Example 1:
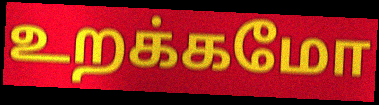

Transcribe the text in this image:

உறக்கமோ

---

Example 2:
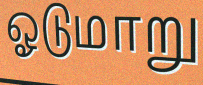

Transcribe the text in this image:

ஓடுமாறு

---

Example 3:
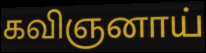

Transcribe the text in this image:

கவிஞனாய்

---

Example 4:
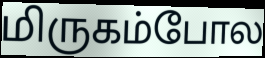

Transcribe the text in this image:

மிருகம்போல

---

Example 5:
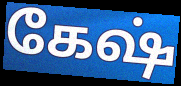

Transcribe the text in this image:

கேஷ்